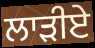
ਲਾੜੀਏ